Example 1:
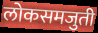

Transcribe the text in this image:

लोकसमजुती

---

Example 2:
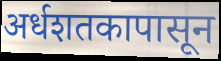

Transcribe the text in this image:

अर्धशतकापासून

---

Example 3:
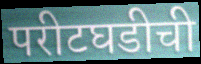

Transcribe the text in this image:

परीटघडीची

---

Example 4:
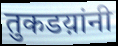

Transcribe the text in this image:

तुकडय़ांनी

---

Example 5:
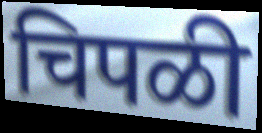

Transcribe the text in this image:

चिपळी